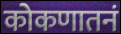
कोकणातनं